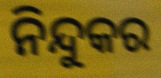
ନିନ୍ଦୁକର